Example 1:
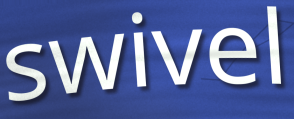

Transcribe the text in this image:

swivel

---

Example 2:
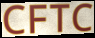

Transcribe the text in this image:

CFTC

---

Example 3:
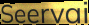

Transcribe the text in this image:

Seervai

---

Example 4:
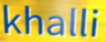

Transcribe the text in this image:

khalli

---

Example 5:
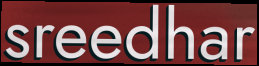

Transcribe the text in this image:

sreedhar